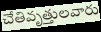
చేతివృత్తులవారు